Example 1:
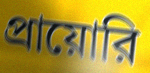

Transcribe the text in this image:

প্রায়োরি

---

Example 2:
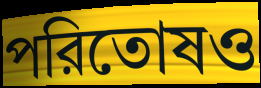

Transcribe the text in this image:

পরিতোষও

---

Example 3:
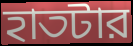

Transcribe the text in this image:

হাতটার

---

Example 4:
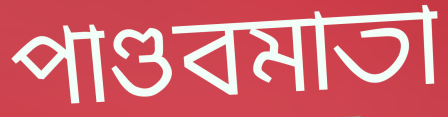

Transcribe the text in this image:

পাণ্ডবমাতা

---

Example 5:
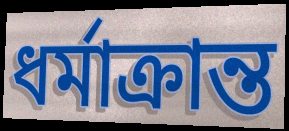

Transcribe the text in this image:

ধর্মাক্রান্ত